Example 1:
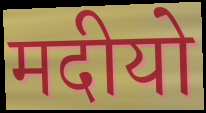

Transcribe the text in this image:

मदीयो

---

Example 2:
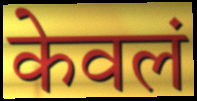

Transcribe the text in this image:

केवलं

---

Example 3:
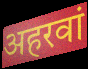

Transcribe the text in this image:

अहरवां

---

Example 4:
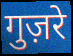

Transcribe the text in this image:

गुज़रे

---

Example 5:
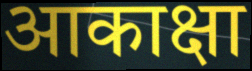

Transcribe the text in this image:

आकाक्षा